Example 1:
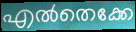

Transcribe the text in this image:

എൽതെക്കേ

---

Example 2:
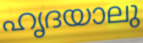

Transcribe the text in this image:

ഹൃദയാലു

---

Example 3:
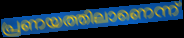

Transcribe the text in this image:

പ്രണയത്തിലാണെന്ന്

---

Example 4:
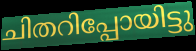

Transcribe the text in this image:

ചിതറിപ്പോയിട്ടു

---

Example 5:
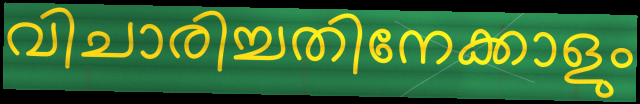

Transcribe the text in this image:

വിചാരിച്ചതിനേക്കാളും